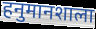
हनुमानशाला